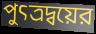
পুৎত্রদ্বয়ের